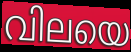
വിലയെ